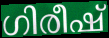
ഗിരീഷ്